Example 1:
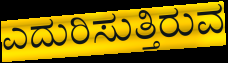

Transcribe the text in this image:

ಎದುರಿಸುತ್ತಿರುವ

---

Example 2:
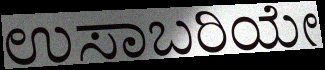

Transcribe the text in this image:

ಉಸಾಬರಿಯೇ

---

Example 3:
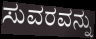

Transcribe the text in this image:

ಸುವರವನ್ನು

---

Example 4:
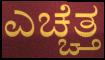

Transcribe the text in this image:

ಎಚ್ಚೆತ್ತ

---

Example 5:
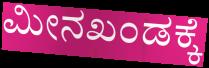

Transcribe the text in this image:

ಮೀನಖಂಡಕ್ಕೆ